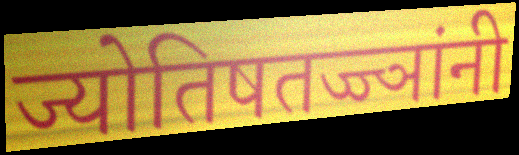
ज्योतिषतज्ज्ञांनी